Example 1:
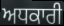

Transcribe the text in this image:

ਅਧਕਾਰੀ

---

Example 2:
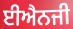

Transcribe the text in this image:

ਈਐਨਜੀ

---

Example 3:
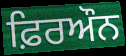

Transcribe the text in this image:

ਫ਼ਿਰਔਨ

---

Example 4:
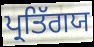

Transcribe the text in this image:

ਪ੍ਰਤਿੱਗਯ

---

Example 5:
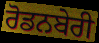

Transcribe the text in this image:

ਰੋਡਨਬੇਰੀ